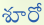
శూరో